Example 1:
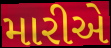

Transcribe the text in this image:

મારીએ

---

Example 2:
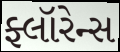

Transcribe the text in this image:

ફ્લૉરેન્સ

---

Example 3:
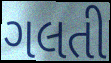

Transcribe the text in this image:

ગલતી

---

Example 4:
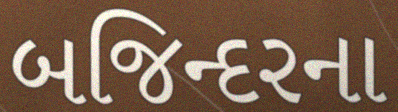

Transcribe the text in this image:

બજિન્દરના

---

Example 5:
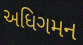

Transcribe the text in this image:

અધિગમન